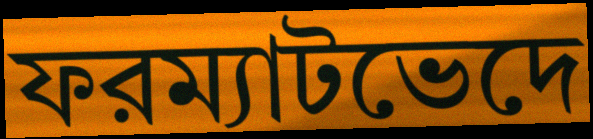
ফরম্যাটভেদে